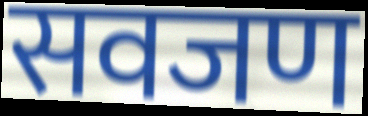
सवजण